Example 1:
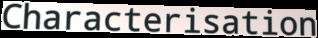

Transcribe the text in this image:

Characterisation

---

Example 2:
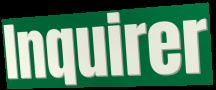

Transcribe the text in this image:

Inquirer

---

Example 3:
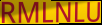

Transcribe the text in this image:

RMLNLU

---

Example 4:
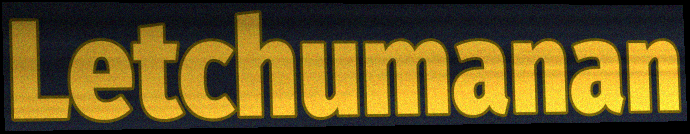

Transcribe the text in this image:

Letchumanan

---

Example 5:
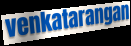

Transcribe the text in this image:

venkatarangan